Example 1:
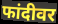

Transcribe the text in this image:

फांदीवर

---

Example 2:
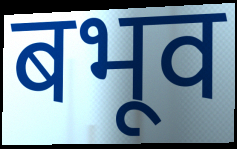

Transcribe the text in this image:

बभूव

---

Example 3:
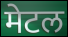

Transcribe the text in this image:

मेटल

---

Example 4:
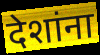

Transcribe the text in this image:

देशांना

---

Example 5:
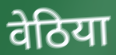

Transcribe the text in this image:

वेठिया